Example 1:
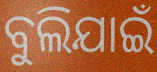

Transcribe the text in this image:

ବୁଲିଯାଇଁ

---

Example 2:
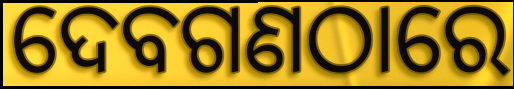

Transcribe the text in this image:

ଦେବଗଣଠାରେ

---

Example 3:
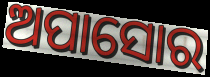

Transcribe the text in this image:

ଅପାସୋର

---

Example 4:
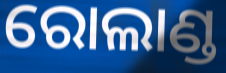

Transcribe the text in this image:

ରୋଲାଣ୍ଡ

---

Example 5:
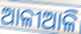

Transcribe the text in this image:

ଆଳୀଆଳି